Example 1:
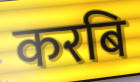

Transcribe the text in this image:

करबि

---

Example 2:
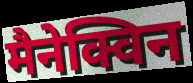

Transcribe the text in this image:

मैनेक्विन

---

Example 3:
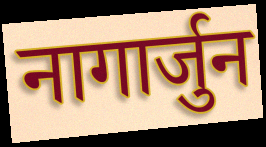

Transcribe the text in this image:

नागार्जुन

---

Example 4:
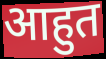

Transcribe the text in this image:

आहुत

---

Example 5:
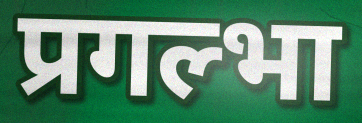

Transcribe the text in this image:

प्रगल्भा